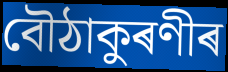
বৌঠাকুৰণীৰ